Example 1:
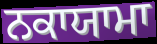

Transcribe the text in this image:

ਨਕਾਯਾਮਾ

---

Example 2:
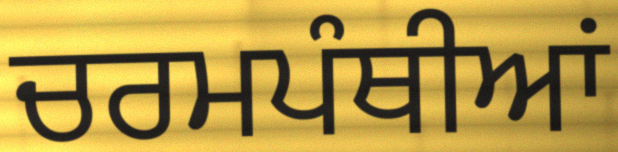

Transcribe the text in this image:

ਚਰਮਪੰਥੀਆਂ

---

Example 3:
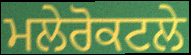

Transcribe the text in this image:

ਮਲੇਰੋਕਟਲੇ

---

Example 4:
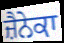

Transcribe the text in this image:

ਜ਼ੈਨੇਕਾ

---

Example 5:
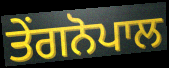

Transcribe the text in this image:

ਤੇਂਗਨੋਪਾਲ